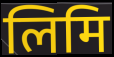
लिमि